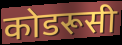
कोडरूसी